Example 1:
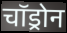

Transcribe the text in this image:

चॉड्रोन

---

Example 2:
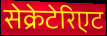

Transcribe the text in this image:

सेक्रेटेरिएट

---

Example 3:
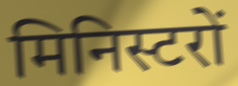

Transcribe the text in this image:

मिनिस्टरों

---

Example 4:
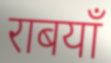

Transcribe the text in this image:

राबयाँ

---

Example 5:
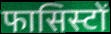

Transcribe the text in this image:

फासिस्टों